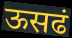
ऊसढं